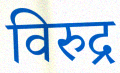
विरुद्र